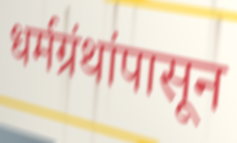
धर्मग्रंथांपासून